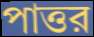
পাত্তর